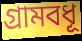
গ্রামবধূ